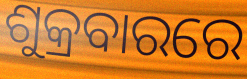
ଶୁକ୍ରବାରରେ